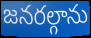
జనరల్గాను